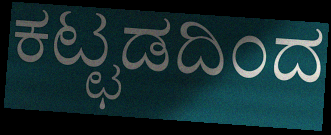
ಕಟ್ಟಡದಿಂದ